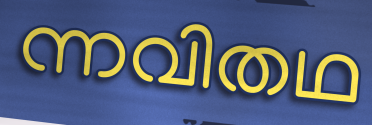
ന്നവിതഥ